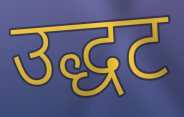
उद्धट